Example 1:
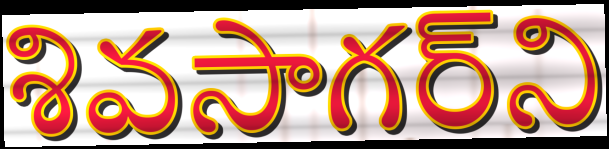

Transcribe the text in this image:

శివసాగర్‌ని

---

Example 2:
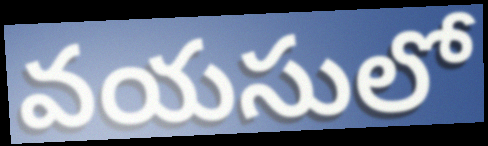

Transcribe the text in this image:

వయసులో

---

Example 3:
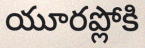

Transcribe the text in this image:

యూరప్లోకి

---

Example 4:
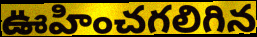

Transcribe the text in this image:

ఊహించగలిగిన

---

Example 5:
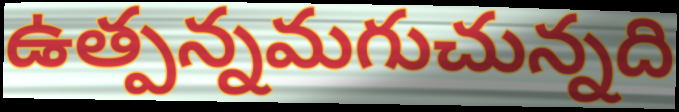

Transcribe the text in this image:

ఉత్పన్నమగుచున్నది